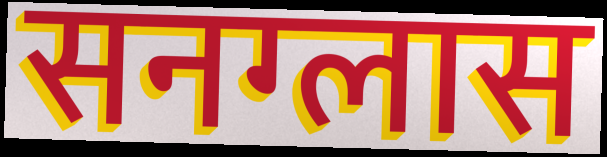
सनग्लास